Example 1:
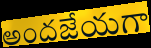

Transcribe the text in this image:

అందజేయగా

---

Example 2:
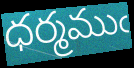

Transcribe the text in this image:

ధర్మముఁ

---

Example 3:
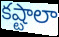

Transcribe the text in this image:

కష్టాలా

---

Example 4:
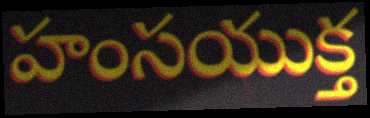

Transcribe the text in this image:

హంసయుక్త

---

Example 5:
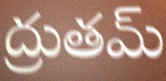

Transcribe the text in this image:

ద్రుతమ్